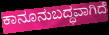
ಕಾನೂನುಬದ್ಧವಾಗಿದೆ